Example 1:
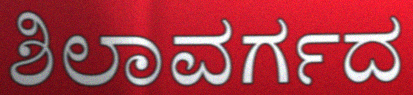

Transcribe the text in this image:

ಶಿಲಾವರ್ಗದ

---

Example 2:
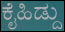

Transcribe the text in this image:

ಕೈಹಿಡ್ದು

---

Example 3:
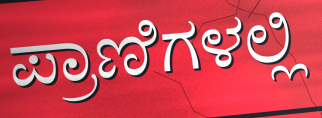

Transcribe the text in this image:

ಪ್ರಾಣಿಗಳಲ್ಲಿ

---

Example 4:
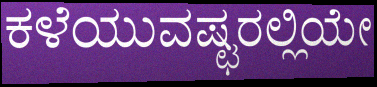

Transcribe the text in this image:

ಕಳೆಯುವಷ್ಟರಲ್ಲಿಯೇ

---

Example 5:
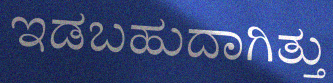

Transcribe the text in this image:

ಇಡಬಹುದಾಗಿತ್ತು